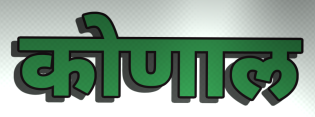
कोणाल